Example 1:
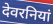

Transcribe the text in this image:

देवरनियां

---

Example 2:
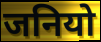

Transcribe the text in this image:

जनियो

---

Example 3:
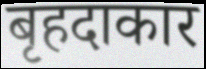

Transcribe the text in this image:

बृहदाकार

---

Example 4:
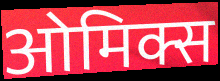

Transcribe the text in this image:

ओमिक्स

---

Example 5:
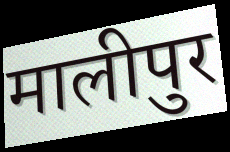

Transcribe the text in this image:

मालीपुर